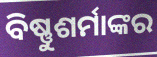
ବିଷ୍ଣୁଶର୍ମାଙ୍କର